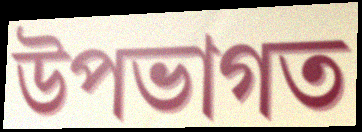
উপভাগত